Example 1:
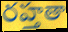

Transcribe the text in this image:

రహ్తతా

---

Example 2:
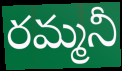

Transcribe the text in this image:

రమ్మనీ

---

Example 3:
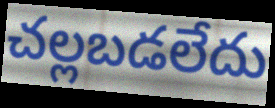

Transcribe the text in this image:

చల్లబడలేదు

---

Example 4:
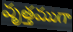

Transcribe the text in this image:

వృత్తముగా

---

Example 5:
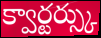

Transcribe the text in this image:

క్వార్టర్స్కు